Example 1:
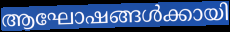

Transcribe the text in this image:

ആഘോഷങ്ങൾക്കായി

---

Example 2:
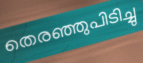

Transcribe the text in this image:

തെരഞ്ഞുപിടിച്ചു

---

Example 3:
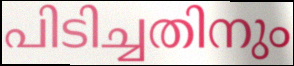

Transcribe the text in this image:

പിടിച്ചതിനും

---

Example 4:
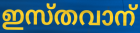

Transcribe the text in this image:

ഇസ്തവാന്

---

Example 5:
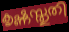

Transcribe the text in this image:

കൃഷ്ണസ്തുതി